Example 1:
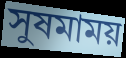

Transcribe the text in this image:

সুষমাময়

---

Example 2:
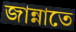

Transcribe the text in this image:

জান্নাতে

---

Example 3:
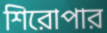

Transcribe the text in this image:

শিরোপার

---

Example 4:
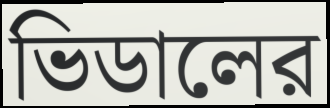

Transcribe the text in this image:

ভিডালের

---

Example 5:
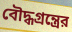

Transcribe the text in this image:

বৌদ্ধগ্রন্ত্রের